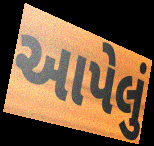
આપેલું